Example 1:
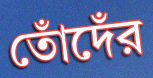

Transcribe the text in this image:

তোঁদেঁর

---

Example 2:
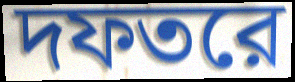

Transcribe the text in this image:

দফতরে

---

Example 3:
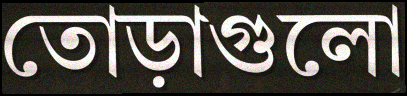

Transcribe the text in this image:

তোড়াগুলো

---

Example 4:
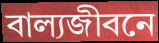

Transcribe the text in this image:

বাল্যজীবনে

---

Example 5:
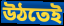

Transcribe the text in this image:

উঠতেই